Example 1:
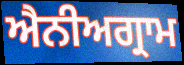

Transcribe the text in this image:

ਐਨੀਅਗ੍ਰਾਮ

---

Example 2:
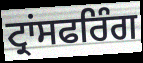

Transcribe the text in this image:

ਟ੍ਰਾਂਸਫਰਿੰਗ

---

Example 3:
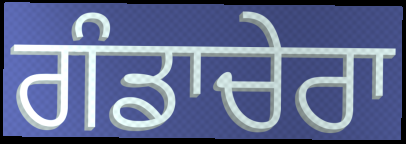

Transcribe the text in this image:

ਗੰਡਾਚੇਰਾ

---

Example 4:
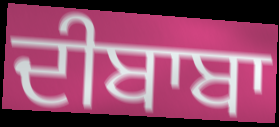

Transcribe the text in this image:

ਦੀਬਾਬਾ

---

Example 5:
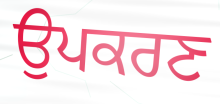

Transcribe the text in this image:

ਉਪਕਰਣ